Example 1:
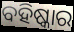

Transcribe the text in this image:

ବହିଷ୍କାର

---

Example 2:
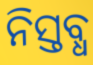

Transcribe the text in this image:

ନିସ୍ତବ୍ଧ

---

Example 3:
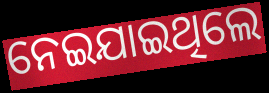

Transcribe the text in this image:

ନେଇଯାଇଥିଲେ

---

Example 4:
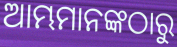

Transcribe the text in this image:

ଆମ୍ଭମାନଙ୍କଠାରୁ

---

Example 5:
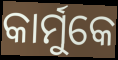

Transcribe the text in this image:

କାର୍ମୁକେ